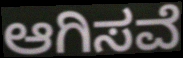
ಆಗಿಸವೆ